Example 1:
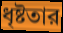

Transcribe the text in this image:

ধৃষ্টতার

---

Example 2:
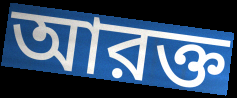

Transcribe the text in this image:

আরক্ত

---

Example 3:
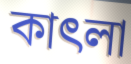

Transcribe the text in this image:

কাৎলা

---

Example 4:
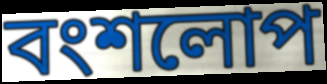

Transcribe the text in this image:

বংশলোপ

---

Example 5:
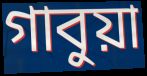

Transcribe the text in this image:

গাবুয়া